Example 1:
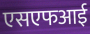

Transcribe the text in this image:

एसएफआई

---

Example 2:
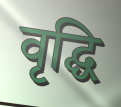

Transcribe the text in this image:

वृद्घि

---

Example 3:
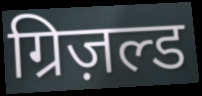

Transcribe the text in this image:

ग्रिज़ल्ड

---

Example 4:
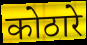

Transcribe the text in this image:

कोठारे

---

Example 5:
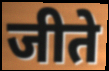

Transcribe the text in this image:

जीते